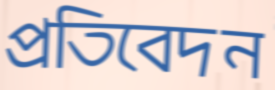
প্ৰতিবেদন